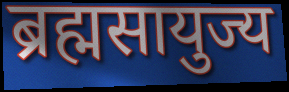
ब्रह्मसायुज्य